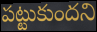
పట్టుకుందని